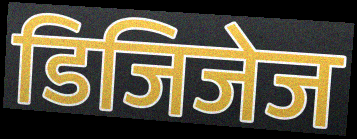
डिजिजेज